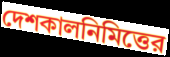
দেশকালনিমিত্তের